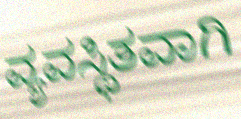
ವ್ಯವಸ್ಥಿತವಾಗಿ